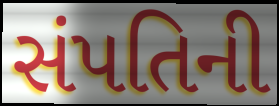
સંપતિની